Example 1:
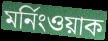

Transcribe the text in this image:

মর্নিংওয়াক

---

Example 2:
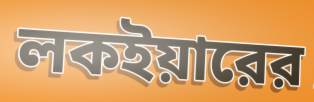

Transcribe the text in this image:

লকইয়ারের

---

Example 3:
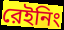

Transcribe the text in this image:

রেইনিং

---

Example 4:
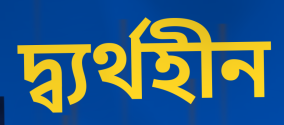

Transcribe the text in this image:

দ্ব্যর্থহীন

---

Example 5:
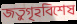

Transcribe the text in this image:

জতুগৃহবিশেষ